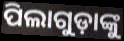
ପିଲାଗୁଡ଼ାଙ୍କୁ